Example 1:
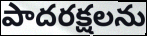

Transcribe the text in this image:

పాదరక్షలను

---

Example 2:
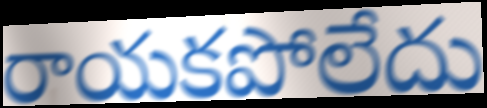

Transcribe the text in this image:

రాయకపోలేదు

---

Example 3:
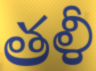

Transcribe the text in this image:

తళీ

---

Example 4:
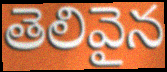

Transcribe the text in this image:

తెలివైన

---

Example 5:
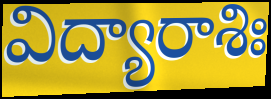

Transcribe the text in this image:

విద్యారాశిః